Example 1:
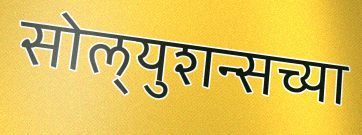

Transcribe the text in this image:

सोल्युशन्सच्या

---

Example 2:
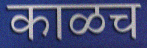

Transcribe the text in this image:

काळच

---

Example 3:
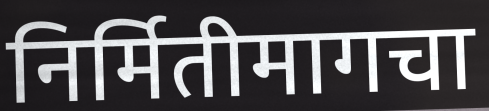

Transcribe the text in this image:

निर्मितीमागचा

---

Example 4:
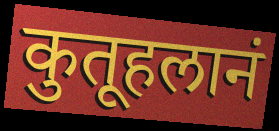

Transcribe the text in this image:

कुतूहलानं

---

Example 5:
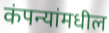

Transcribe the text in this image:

कंपन्यांमधील